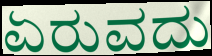
ಏರುವದು